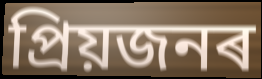
প্ৰিয়জনৰ